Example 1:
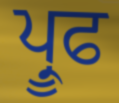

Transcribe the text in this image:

ਪ੍ਰੂਫ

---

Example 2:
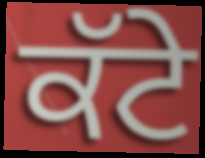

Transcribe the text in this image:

ਕੱਟੇ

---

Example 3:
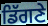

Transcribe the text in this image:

ਡਿੱਗਣੇ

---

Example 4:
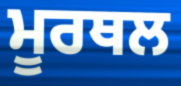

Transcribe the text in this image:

ਮੂਰਥਲ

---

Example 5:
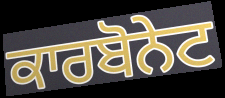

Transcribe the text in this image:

ਕਾਰਬੋਨੇਟ